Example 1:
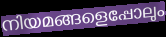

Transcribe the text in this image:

നിയമങ്ങളെപ്പോലും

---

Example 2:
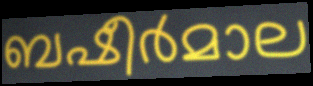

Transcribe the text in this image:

ബഷീർമാല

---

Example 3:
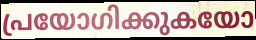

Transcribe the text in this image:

പ്രയോഗിക്കുകയോ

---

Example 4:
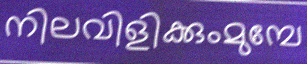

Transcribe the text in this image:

നിലവിളിക്കുംമുമ്പേ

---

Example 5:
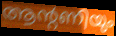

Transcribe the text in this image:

ആന്റണിയും